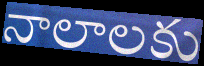
నాలాలకు